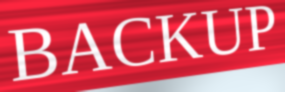
BACKUP